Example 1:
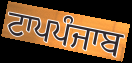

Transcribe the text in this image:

ਟਾਪਪੰਜਾਬ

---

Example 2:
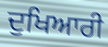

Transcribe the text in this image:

ਦੁਖਿਆਰੀ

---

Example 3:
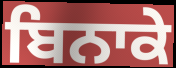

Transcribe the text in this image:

ਬਿਨਾਕੇ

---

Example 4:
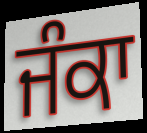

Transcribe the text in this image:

ਜੰਕਾ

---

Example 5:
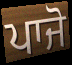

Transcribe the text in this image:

ਪਾਜੋ